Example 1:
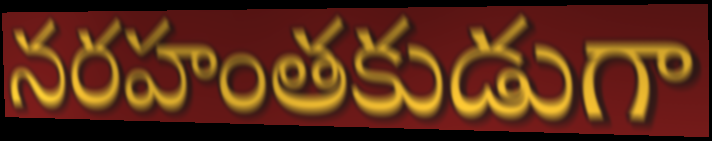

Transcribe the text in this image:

నరహంతకుడుగా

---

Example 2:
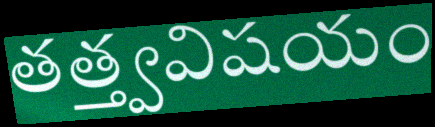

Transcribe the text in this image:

తత్త్వవిషయం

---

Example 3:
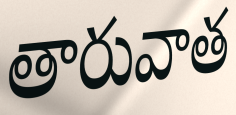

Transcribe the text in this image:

తారువాత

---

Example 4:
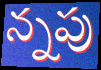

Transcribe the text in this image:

న్నపు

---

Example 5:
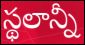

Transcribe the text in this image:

స్థలాన్నీ